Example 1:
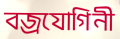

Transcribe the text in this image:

বজ্ৰযোগিনী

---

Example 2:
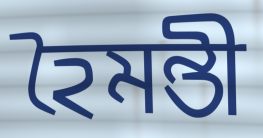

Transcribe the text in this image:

হৈমন্তী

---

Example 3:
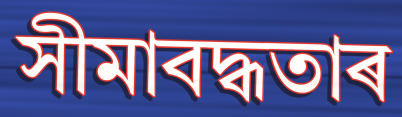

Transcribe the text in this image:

সীমাবদ্ধতাৰ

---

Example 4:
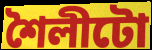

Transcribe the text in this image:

শৈলীটো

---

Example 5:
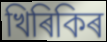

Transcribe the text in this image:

খিৰিকিৰ